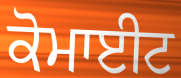
ਕੋਮਾਈਟ